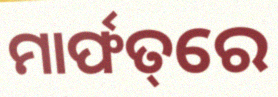
ମାର୍ଫତ୍‌ରେ